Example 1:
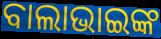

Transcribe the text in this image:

ବାଲାଭାଇଙ୍କ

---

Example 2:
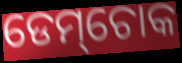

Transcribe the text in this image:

ଡେମ୍‌ଚୋକ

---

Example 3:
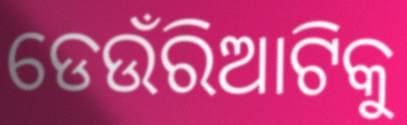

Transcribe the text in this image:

ଡେଉଁରିଆଟିକୁ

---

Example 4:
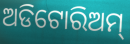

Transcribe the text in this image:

ଅଡିଟୋରିଅମ୍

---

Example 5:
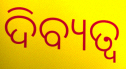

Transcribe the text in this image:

ଦିବ୍ୟତ୍ବ